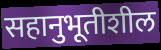
सहानुभूतीशील